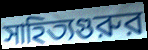
সাহিত্যগুরুর